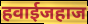
हवाईजहाज